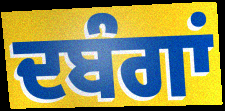
ਦਬੰਗਾਂ